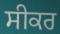
ਸੀਕਰ